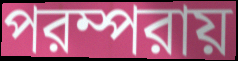
পরম্পরায়